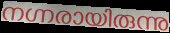
നഗ്നരായിരുന്നു